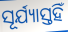
ସୂର୍ଯ୍ୟାସ୍ତହିଁ